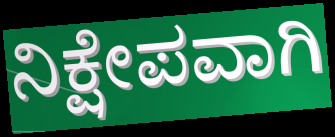
ನಿಕ್ಷೇಪವಾಗಿ